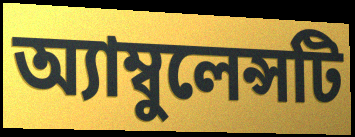
অ্যাম্বুলেন্সটি